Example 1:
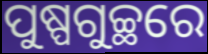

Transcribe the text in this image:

ପୁଷ୍ପଗୁଚ୍ଛରେ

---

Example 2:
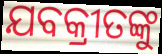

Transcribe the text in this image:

ଯବକ୍ରୀତଙ୍କୁ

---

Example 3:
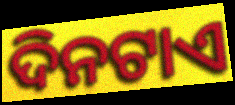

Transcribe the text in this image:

ଦିନଟାଏ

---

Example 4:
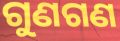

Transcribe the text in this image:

ଗୁଣଗଣ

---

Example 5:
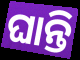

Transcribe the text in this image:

ଘାନ୍ତି